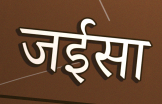
जईसा